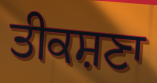
ਤੀਕਸ਼ਣਾ